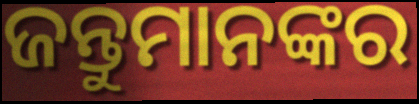
ଜନ୍ତୁମାନଙ୍କର